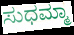
ಸುಧಮ್ಮಾ